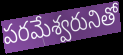
పరమేశ్వరునితో